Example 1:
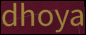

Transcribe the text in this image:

dhoya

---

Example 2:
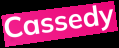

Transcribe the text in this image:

Cassedy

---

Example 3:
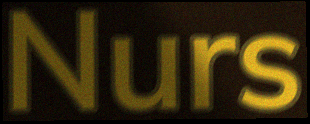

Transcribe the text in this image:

Nurs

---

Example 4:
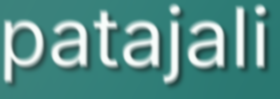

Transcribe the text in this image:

patajali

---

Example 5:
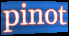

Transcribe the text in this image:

pinot